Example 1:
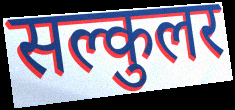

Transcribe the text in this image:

सल्कुलर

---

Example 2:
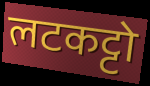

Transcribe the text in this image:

लटकट्टो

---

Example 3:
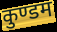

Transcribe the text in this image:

कुण्डम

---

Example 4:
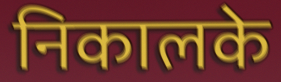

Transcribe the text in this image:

निकालके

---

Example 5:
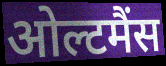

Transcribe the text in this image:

ओल्टमैंस